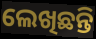
ଲେଖିଛନ୍ତି